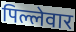
पिल्लेवार